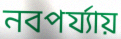
নবপর্য্যায়